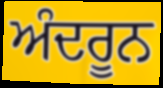
ਅੰਦਰੂਨ